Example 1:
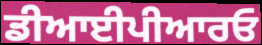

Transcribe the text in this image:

ਡੀਆਈਪੀਆਰਓ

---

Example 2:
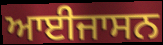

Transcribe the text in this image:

ਆਈਜਾਸਨ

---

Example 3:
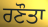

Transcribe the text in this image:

ਰਣੌਤਾ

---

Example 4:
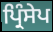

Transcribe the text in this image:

ਪ੍ਰਿੰਸੇਪ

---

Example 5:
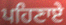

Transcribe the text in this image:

ਪਹਿਣਾਏ